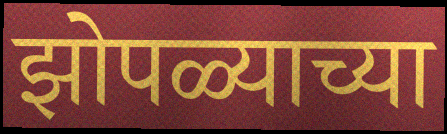
झोपळ्याच्या